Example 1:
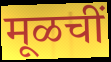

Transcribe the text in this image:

मूळचीं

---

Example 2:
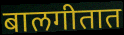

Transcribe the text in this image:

बालगीतात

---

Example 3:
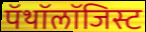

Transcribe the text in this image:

पॅथॉलॉजिस्ट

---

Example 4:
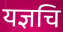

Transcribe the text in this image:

यज्ञचि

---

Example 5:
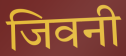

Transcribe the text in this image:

जिवनी